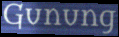
Gunung